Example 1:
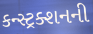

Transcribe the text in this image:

કન્સ્ટ્રક્શનની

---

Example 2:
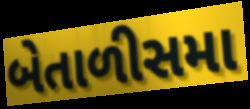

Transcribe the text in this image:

બેતાળીસમા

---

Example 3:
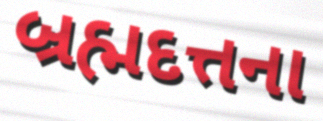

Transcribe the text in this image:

બ્રહ્મદત્તના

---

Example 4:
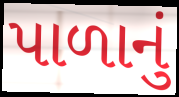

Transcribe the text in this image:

પાળાનું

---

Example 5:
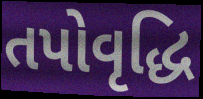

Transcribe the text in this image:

તપોવૃદ્ધિ